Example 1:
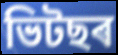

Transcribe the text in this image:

ভিটছৰ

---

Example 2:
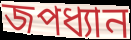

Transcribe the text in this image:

জপধ্যান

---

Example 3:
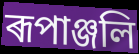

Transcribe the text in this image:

ৰূপাঞ্জলি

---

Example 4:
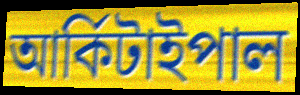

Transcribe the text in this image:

আৰ্কিটাইপাল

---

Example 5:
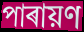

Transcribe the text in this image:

পাৰায়ণ